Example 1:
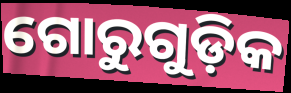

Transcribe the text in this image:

ଗୋରୁଗୁଡ଼ିକ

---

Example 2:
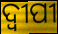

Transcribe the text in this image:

ଦ୍ୱୀପୀ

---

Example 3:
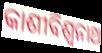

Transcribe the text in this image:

କାଶୀବିଶ୍ୱନାଥ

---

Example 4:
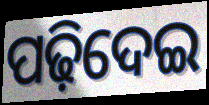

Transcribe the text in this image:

ପଢ଼ିଦେଇ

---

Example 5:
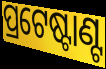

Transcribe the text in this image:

ପ୍ରଟେଷ୍ଟାଣ୍ଟ